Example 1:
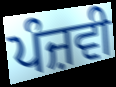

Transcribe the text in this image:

ਪੰਜ਼ਵੀ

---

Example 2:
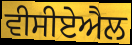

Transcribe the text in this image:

ਵੀਸੀਏਐਲ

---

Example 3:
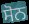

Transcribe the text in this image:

ਸੋਨ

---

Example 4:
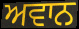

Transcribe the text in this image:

ਅਵਾਨ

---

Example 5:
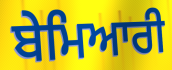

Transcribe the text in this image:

ਬੇਮਿਆਰੀ